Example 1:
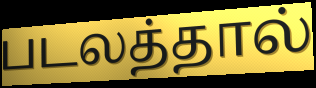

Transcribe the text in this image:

படலத்தால்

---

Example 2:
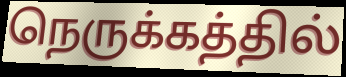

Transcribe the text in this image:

நெருக்கத்தில்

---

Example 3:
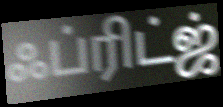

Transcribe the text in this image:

ஃப்ரிட்ஜ்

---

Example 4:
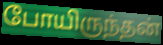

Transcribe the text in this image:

போயிருந்தன்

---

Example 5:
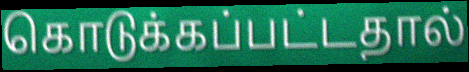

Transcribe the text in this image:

கொடுக்கப்பட்டதால்